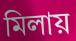
মিলায়